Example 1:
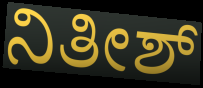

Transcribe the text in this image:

ನಿತೀಶ್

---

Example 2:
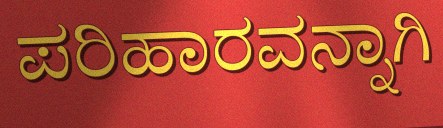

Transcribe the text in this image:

ಪರಿಹಾರವನ್ನಾಗಿ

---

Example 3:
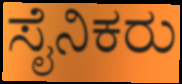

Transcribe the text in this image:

ಸೈನಿಕರು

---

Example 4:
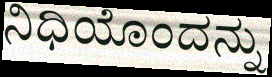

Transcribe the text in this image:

ನಿಧಿಯೊಂದನ್ನು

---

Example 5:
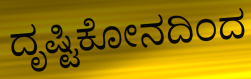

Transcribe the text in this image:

ದೃಷ್ಟಿಕೋನದಿಂದ